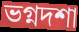
ভগ্নদশা